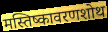
मस्तिष्कावरणशोथ